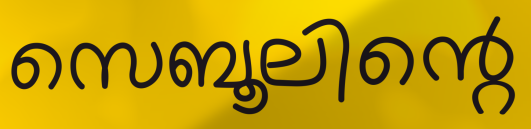
സെബൂലിന്റെ